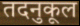
तदनुकूल